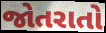
જોતરાતો